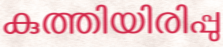
കുത്തിയിരിപ്പു